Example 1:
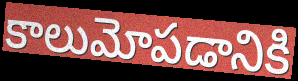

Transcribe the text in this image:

కాలుమోపడానికి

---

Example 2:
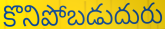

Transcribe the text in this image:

కొనిపోబడుదురు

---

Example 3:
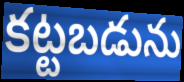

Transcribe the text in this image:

కట్టబడును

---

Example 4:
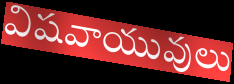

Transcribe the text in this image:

విషవాయువులు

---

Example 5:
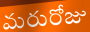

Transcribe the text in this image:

మరురోజు